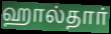
ஹால்தார்